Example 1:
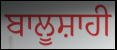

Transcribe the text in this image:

ਬਾਲੂਸ਼ਾਹੀ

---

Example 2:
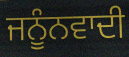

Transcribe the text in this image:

ਜਨੂੰਨਵਾਦੀ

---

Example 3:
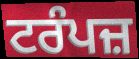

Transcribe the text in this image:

ਟਰੰਪਜ਼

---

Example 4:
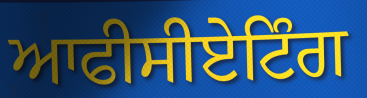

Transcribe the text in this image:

ਆਫੀਸੀਏਟਿੰਗ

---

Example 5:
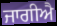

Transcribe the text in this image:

ਜਾਗੀਐ